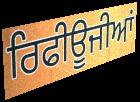
ਰਿਫੀਊਜੀਆਂ